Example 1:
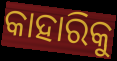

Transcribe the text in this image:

କାହାରିକୁ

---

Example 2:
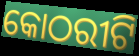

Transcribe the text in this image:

କୋଠରୀଟି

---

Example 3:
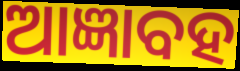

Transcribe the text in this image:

ଆଜ୍ଞାବହ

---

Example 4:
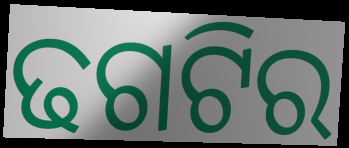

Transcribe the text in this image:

ଢଗଟିର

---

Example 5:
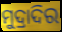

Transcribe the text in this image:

ମୁଦ୍ରାଦିର